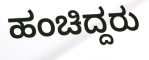
ಹಂಚಿದ್ದರು